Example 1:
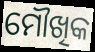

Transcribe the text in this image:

ମୌଖିକ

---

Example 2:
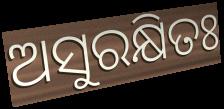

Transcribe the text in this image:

ଅସୁରକ୍ଷିତଃ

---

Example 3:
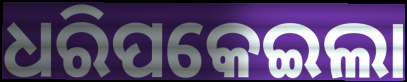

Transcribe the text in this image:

ଧରିପକେଇଲା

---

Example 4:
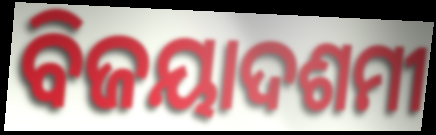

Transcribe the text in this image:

ବିଜୟାଦଶମୀ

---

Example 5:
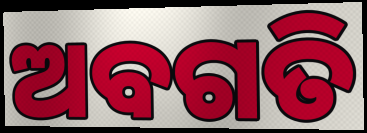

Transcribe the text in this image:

ଅବଗତି